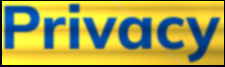
Privacy